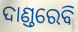
ଦାଣ୍ଡରେବି